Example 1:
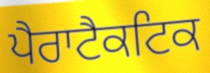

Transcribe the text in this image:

ਪੈਰਾਟੈਕਟਿਕ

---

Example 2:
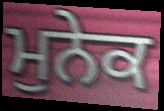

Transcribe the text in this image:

ਮੁਨੇਕ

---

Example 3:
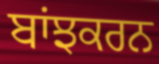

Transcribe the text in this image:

ਬਾਂਝਕਰਨ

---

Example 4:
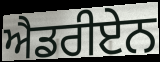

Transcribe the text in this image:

ਐਡਰੀਏਨ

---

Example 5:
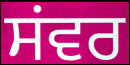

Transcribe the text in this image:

ਸਂਵਰ